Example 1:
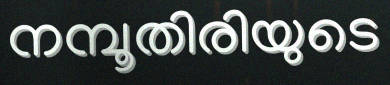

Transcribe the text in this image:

നമ്പൂതിരിയുടെ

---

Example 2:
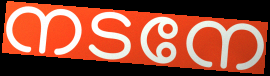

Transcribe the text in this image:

നടനേ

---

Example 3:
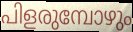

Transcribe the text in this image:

പിളരുമ്പോഴും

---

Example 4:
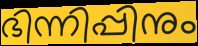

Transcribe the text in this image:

ഭിന്നിപ്പിനും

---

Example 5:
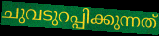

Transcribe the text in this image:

ചുവടുറപ്പിക്കുന്നത്